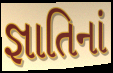
જ્ઞાતિનાં